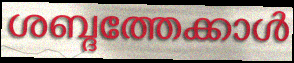
ശബ്ദത്തേക്കാൾ